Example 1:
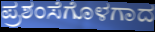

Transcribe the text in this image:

ಪ್ರಶಂಸೆಗೊಳಗಾದ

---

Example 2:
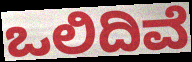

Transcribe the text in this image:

ಒಲಿದಿವೆ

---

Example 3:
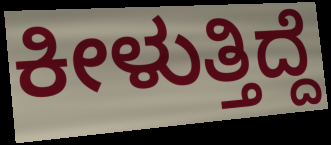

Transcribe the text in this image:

ಕೀಳುತ್ತಿದ್ದೆ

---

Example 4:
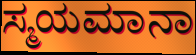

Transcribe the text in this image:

ಸ್ಮಯಮಾನಾ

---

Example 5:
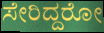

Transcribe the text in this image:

ಸೇರಿದ್ದರೋ